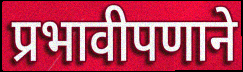
प्रभावीपणाने